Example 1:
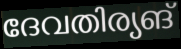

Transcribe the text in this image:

ദേവതിര്യങ്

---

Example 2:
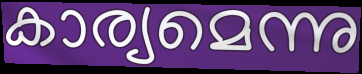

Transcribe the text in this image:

കാര്യമെന്നു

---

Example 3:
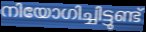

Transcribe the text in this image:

നിയോഗിച്ചിട്ടുണ്ട്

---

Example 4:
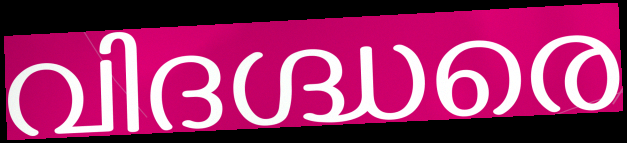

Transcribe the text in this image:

വിദഗ്ദ്ധരെ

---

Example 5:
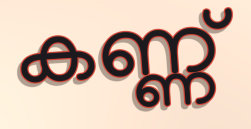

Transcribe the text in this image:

കണ്ണ്